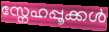
സ്നേഹപ്പൂക്കൾ